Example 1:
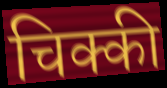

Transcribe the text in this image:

चिक्की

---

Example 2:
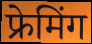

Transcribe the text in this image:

फ्रेमिंग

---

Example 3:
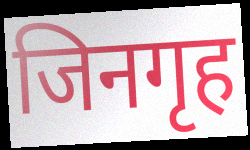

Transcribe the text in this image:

जिनगृह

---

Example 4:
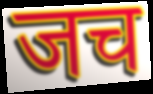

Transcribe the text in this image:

जच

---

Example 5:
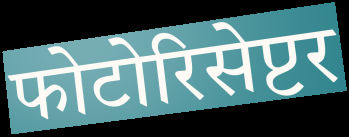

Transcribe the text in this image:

फोटोरिसेप्टर